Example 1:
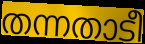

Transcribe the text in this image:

തന്നതാടീ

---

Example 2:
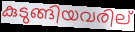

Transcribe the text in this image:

കുടുങ്ങിയവരില്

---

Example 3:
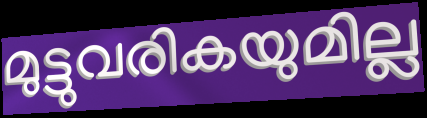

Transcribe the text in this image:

മുട്ടുവരികയുമില്ല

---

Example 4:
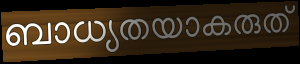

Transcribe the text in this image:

ബാധ്യതയാകരുത്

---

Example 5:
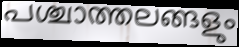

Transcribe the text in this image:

പശ്ചാത്തലങ്ങളും